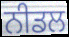
ਨੀਡਲ